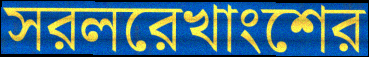
সরলরেখাংশের